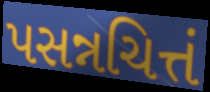
પસન્નચિત્તં